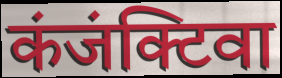
कंजंक्टिवा